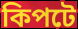
কিপটে